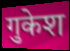
गुकेश